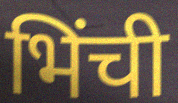
भिंची